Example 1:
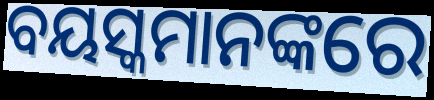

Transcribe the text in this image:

ବୟସ୍କମାନଙ୍କରେ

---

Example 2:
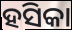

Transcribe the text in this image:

ହସିକା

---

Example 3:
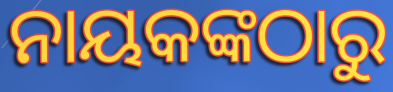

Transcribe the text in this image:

ନାୟକଙ୍କଠାରୁ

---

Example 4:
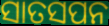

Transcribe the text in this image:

ସାତସପନ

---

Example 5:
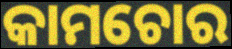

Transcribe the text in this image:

କାମଚୋର